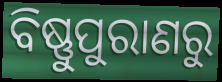
ବିଷ୍ଣୁପୁରାଣରୁ